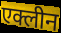
एक्लीन